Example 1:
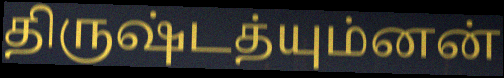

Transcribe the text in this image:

திருஷ்டத்யும்னன்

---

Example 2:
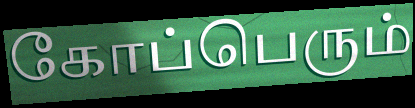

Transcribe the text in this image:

கோப்பெரும்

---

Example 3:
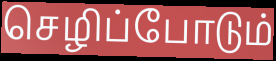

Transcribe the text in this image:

செழிப்போடும்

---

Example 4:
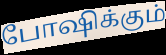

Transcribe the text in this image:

போஷிக்கும்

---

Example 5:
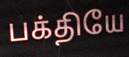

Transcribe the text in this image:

பக்தியே